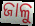
ଜାଳୁ